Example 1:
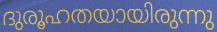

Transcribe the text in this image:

ദുരൂഹതയായിരുന്നു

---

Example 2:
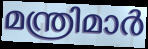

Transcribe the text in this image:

മന്ത്രിമാർ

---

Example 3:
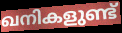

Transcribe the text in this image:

ഖനികളുണ്ട്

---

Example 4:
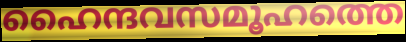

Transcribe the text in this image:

ഹൈന്ദവസമൂഹത്തെ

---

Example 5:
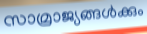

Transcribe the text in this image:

സാമ്രാജ്യങ്ങൾക്കും